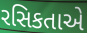
રસિકતાએ